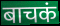
बाचकं